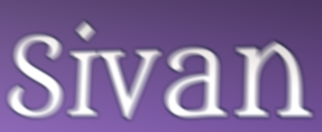
Sivan